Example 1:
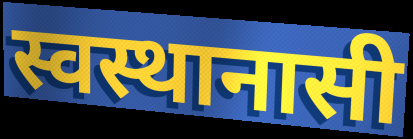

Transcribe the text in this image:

स्वस्थानासी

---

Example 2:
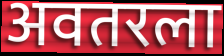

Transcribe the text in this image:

अवतरला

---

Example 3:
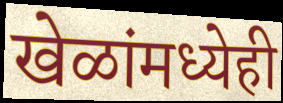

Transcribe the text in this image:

खेळांमध्येही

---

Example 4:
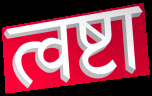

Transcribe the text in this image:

त्वष्टा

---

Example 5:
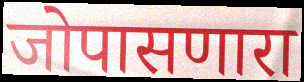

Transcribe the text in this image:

जोपासणारा